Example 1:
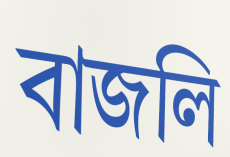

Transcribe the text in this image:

বাজলি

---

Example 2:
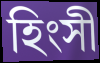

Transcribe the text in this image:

হিংসী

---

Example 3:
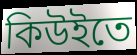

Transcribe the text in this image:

কিউইতে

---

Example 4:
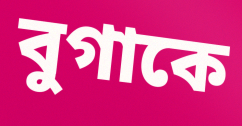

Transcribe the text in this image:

বুগাকে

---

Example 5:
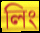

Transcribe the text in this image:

লিং